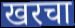
खरचा